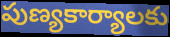
పుణ్యకార్యాలకు